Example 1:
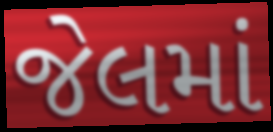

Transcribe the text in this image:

જેલમાં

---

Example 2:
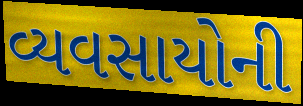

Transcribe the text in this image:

વ્યવસાયોની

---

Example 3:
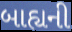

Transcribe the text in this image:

બાહ્યની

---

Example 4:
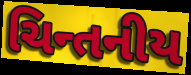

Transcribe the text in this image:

ચિન્તનીય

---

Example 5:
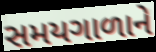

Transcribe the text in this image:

સમયગાળાને